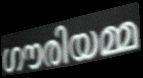
ഗൗരിയമ്മ